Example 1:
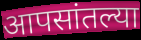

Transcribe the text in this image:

आपसांतल्या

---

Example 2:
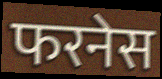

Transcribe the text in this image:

फरनेस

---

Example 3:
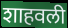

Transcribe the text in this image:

शाहवली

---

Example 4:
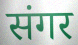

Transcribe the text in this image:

संगर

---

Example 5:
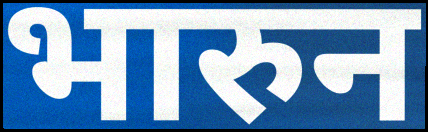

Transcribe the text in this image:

भारुन